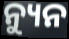
ନ୍ୟୁନ